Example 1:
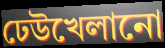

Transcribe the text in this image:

ঢেউখেলানো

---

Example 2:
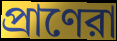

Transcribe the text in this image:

প্রাণেরা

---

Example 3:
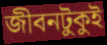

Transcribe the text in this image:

জীবনটুকুই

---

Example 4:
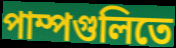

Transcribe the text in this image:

পাম্পগুলিতে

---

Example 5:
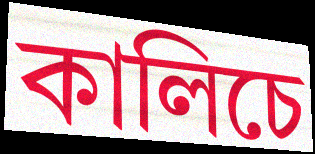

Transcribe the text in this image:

কালিচে